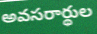
అవసరార్థుల